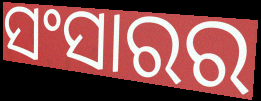
ସଂସାରର